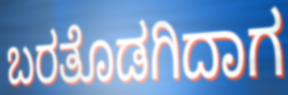
ಬರತೊಡಗಿದಾಗ